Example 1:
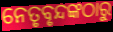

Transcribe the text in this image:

ନେତୃବୃନ୍ଦଙ୍କଠାରୁ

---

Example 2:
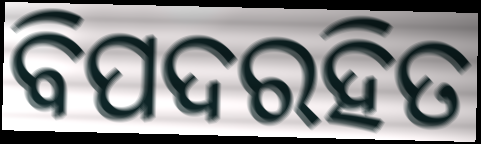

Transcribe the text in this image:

ବିପଦରହିତ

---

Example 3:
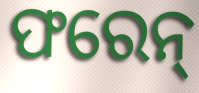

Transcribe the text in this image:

ଫରେନ୍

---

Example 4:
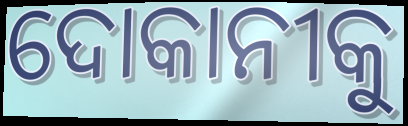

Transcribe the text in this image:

ଦୋକାନୀକୁ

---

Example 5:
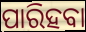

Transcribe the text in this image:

ପାରିହବା